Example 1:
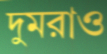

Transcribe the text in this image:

দুমরাও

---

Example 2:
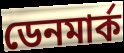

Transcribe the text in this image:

ডেনমার্ক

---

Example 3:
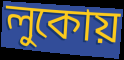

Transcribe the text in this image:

লুকোয়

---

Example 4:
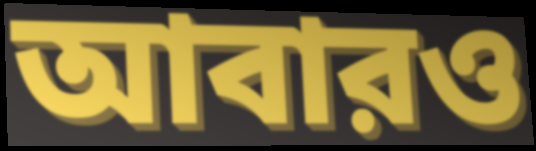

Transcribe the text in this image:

আবারও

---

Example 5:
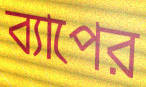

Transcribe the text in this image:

ব্যাপের